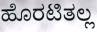
ಹೊರಟಿತಲ್ಲ